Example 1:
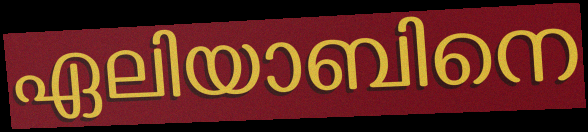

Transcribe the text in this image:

ഏലിയാബിനെ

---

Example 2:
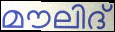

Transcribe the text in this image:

മൗലിദ്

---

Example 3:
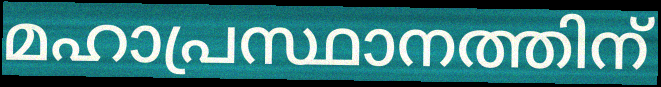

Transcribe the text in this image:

മഹാപ്രസ്ഥാനത്തിന്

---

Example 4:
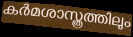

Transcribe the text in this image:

കർമശാസ്ത്രത്തിലും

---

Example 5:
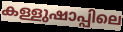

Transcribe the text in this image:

കള്ളുഷാപ്പിലെ